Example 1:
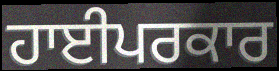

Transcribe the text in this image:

ਹਾਈਪਰਕਾਰ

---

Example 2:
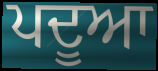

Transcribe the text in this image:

ਪਦੂਆ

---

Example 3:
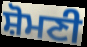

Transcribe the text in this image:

ਸ਼ੋਮਣੀ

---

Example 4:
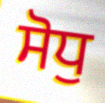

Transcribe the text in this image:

ਸੋਧੁ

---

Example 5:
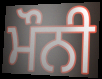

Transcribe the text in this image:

ਮੌਨੀ